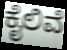
ಕೈಲಿವೆ